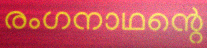
രംഗനാഥന്റെ